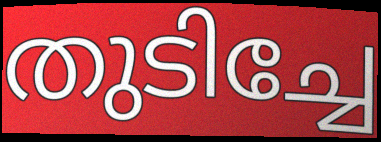
തുടിച്ചേ